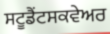
ਸਟੂਡੈਂਟਸਕਵੇਅਰ